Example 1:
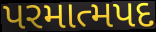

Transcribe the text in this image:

પરમાત્મપદ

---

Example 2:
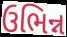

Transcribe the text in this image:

ઉભિન્ન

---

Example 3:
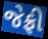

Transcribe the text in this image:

જેફ્રી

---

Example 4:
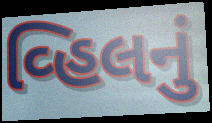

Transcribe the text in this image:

વ્હિલનું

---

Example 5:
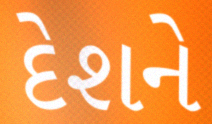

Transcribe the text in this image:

દેશને